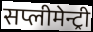
सप्लीमेन्ट्री